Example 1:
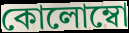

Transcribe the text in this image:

কোলোম্বো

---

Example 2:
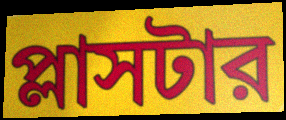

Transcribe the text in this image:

প্লাসটার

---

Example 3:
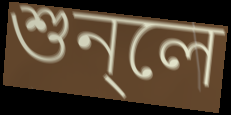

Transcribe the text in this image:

শুন্লে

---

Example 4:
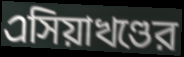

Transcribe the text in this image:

এসিয়াখণ্ডের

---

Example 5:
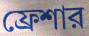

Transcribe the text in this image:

ফ্রেশার